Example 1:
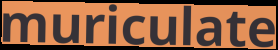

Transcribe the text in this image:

muriculate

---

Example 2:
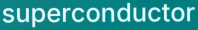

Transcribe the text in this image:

superconductor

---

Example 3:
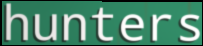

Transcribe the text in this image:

hunters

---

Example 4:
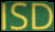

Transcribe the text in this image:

ISD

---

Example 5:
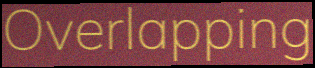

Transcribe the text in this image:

Overlapping